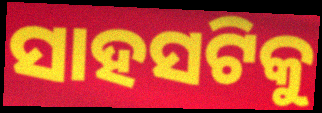
ସାହସଟିକୁ